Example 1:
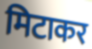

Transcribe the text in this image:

मिटाकर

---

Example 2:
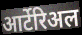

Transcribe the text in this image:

आर्टेरिअल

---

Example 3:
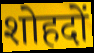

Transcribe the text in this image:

शोहदों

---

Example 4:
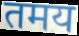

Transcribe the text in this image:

तमय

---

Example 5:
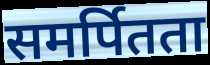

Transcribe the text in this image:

समर्पितता